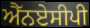
ਐੱਨਏਸੀਪੀ